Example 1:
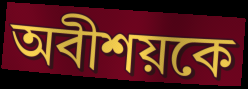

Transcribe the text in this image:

অবীশয়কে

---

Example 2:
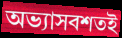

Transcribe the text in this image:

অভ্যাসবশতই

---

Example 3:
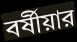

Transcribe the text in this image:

বর্ষীয়ার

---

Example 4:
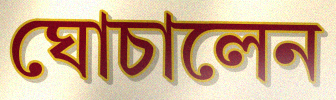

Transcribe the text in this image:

ঘোচালেন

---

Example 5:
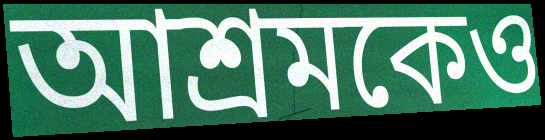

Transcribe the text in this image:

আশ্রমকেও